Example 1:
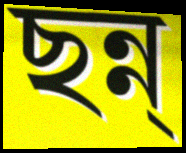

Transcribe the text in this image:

ছন্ন্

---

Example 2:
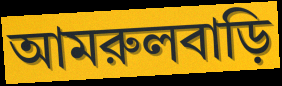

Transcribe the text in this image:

আমরুলবাড়ি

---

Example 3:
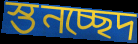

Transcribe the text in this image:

স্তনচ্ছেদ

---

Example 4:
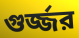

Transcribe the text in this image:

গুর্জ্জর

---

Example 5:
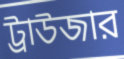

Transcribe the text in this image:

ট্রাউজার